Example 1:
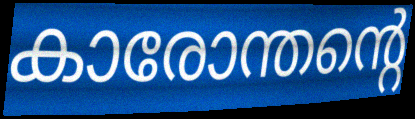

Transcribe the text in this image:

കാരോന്തന്റെ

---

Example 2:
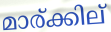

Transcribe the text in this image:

മാര്ക്കില്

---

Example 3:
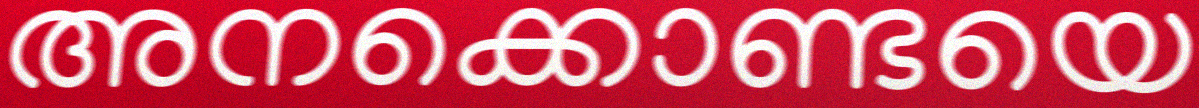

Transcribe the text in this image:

അനക്കൊണ്ടയെ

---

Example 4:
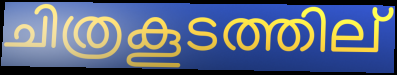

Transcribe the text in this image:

ചിത്രകൂടത്തില്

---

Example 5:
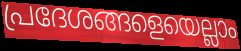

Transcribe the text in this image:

പ്രദേശങ്ങളെയെല്ലാം